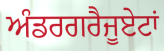
ਅੰਡਰਗਰੈਜੂਏਟਾਂ